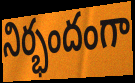
నిర్భందంగా